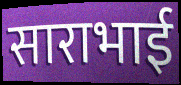
साराभाई